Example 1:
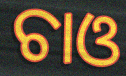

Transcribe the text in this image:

ଚାଓ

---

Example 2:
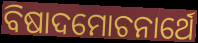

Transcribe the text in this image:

ବିଷାଦମୋଚନାର୍ଥେ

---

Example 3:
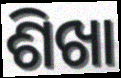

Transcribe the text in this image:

ଶିଖା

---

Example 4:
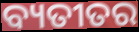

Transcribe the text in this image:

ବ୍ୟତୀତର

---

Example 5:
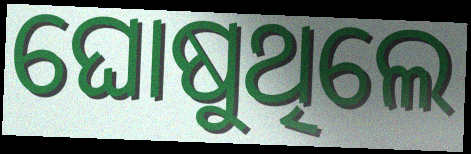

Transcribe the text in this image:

ଘୋଷୁଥିଲେ